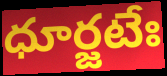
ధూర్జటేః